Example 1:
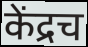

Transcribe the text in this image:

केंद्रच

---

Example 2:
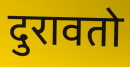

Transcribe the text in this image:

दुरावतो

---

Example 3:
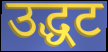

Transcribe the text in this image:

उद्धट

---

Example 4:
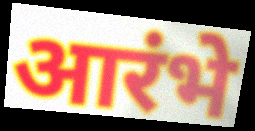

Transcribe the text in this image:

आरंभे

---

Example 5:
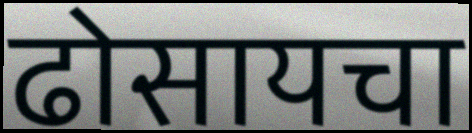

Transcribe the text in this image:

ढोसायचा